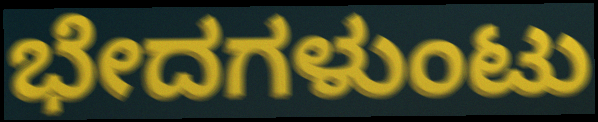
ಭೇದಗಳುಂಟು